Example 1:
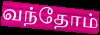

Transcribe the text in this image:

வந்தோம்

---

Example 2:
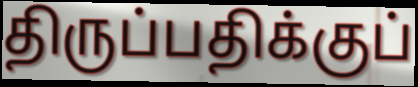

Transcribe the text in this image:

திருப்பதிக்குப்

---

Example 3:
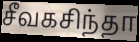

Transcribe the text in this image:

சீவகசிந்தா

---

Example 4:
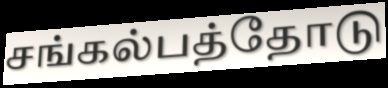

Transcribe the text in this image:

சங்கல்பத்தோடு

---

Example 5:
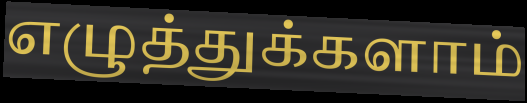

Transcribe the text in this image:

எழுத்துக்களாம்